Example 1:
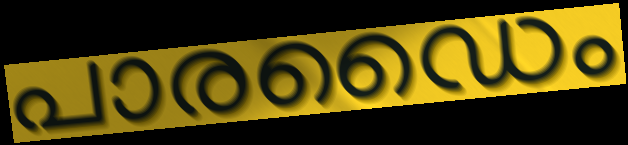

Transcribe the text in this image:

പാരഡൈം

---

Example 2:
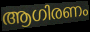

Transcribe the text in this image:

ആഗിരണം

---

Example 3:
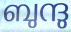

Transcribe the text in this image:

ബുന്ദു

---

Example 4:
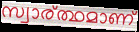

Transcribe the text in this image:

സ്വാര്ത്ഥമാണ്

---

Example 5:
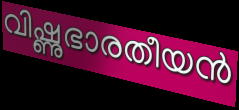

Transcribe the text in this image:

വിഷ്ണുഭാരതീയൻ